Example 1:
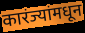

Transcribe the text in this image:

कारंज्यांमधून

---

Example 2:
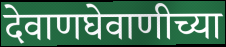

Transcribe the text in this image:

देवाणघेवाणीच्या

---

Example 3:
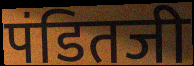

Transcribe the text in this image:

पंडितजी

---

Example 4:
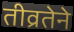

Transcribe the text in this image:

तीव्रतेने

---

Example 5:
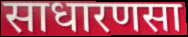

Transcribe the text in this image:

साधारणसा